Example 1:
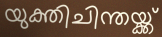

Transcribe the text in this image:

യുക്തിചിന്തയ്ക്ക്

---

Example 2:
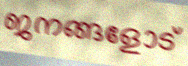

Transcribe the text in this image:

ജനങ്ങളോട്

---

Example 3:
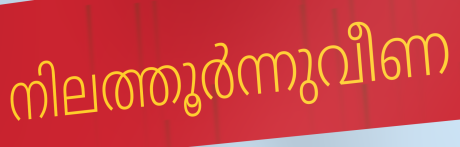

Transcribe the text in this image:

നിലത്തൂർന്നുവീണ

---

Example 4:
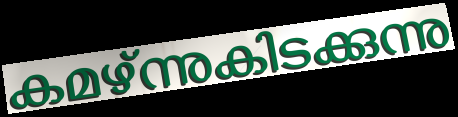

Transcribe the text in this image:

കമഴ്ന്നുകിടക്കുന്നു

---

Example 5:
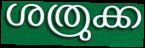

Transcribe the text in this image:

ശത്രുക്ക